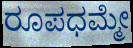
ರೂಪಧಮ್ಮೇ